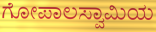
ಗೋಪಾಲಸ್ವಾಮಿಯ